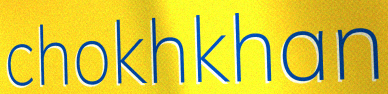
chokhkhan